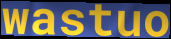
wastuo